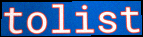
tolist